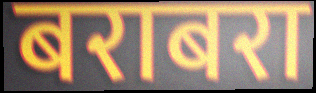
बराबरा